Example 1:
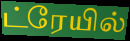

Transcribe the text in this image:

ட்ரேயில்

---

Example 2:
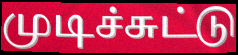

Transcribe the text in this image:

முடிச்சுட்டு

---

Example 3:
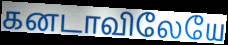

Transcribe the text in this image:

கனடாவிலேயே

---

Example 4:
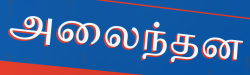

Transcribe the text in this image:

அலைந்தன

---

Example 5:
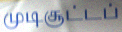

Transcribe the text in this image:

முடிசூட்டப்